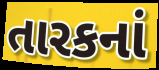
તારકનાં